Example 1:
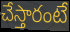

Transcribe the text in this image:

చేస్తారంటే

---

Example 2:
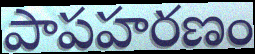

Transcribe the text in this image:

పాపహరణం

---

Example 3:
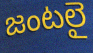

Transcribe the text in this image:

జంటలై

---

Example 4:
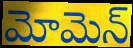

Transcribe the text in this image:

మోమెన్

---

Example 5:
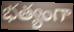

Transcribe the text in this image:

భత్యంగా